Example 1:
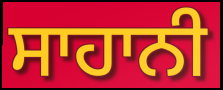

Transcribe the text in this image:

ਸਾਹਾਨੀ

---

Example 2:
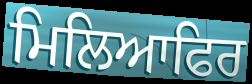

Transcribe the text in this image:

ਮਿਲਿਆਫਿਰ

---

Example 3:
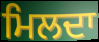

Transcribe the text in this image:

ਮਿਲਦਾ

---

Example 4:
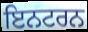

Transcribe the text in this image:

ਇਨਟਰਨ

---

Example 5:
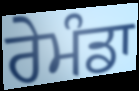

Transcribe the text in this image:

ਰੇਮੰਡਾ